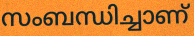
സംബന്ധിച്ചാണ്